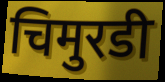
चिमुरडी